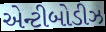
એન્ટીબોડીઝ